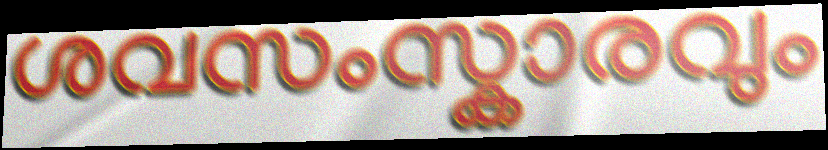
ശവസംസ്കാരവും